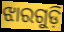
ଝାରଗୁଡ଼ି